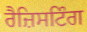
ਰੈਜ਼ਿਸਟਿੰਗ